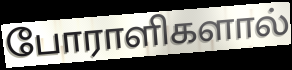
போராளிகளால்